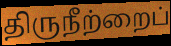
திருநீற்றைப்